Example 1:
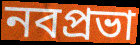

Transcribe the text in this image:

নবপ্রভা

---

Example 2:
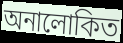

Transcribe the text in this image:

অনালোকিত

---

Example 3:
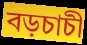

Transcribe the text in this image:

বড়চাচী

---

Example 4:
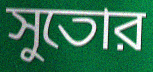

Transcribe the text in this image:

সুতোর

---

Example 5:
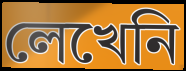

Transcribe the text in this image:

লেখেনি